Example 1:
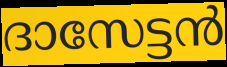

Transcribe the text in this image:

ദാസേട്ടൻ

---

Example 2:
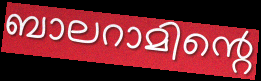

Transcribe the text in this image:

ബാലറാമിന്റെ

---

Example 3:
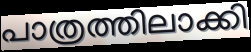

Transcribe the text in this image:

പാത്രത്തിലാക്കി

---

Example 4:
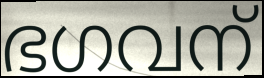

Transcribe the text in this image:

ഭഗവന്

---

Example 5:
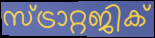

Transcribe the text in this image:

സ്ട്രാറ്റജിക്